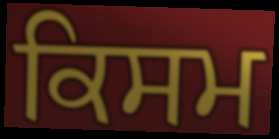
ਕਿਸਮ